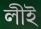
লীই